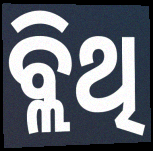
ବ୍ଲିଥି